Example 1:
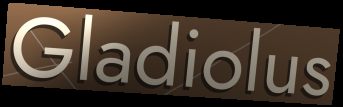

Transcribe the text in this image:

Gladiolus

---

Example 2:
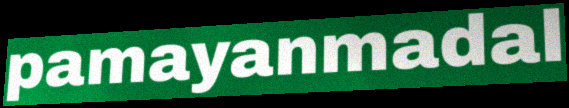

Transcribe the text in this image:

pamayanmadal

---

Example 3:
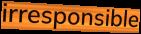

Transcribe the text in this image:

irresponsible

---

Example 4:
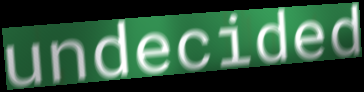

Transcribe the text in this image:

undecided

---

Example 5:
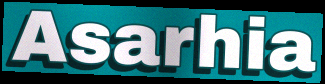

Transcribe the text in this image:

Asarhia